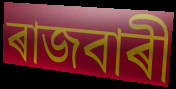
ৰাজবাৰী